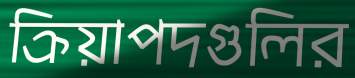
ক্রিয়াপদগুলির